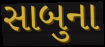
સાબુના